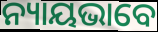
ନ୍ୟାୟଭାବେ